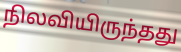
நிலவியிருந்தது